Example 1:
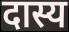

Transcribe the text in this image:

दास्य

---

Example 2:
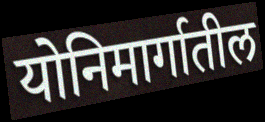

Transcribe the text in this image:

योनिमार्गातील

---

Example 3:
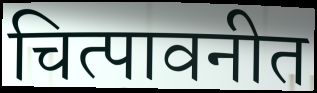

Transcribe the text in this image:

चित्पावनीत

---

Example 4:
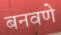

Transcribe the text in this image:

बनवणे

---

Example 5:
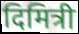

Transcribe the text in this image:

दिमित्री